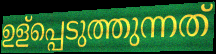
ഉള്പ്പെടുത്തുന്നത്